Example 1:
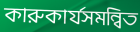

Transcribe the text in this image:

কারুকার্যসমন্বিত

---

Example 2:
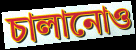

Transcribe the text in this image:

চালানোও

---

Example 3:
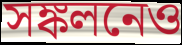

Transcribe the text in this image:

সঙ্কলনেও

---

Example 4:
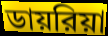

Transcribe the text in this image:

ডায়রিয়া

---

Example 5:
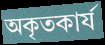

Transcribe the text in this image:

অকৃতকার্য